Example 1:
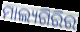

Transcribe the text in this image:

ମାଲ୍ୟଗିରିର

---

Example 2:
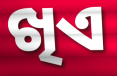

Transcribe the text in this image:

ଖିଏ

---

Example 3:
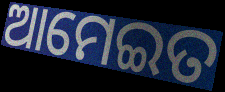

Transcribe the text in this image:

ଆମେଇତ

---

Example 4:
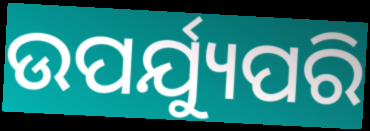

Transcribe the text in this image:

ଉପର୍ଯ୍ୟୁପରି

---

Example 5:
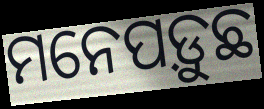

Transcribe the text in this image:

ମନେପଡ଼ୁଛ